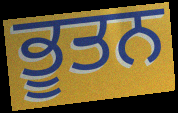
ਭੂਤਨ